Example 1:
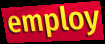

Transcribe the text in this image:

employ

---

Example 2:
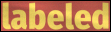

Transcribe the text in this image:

labeled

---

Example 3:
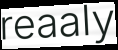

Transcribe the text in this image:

reaaly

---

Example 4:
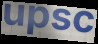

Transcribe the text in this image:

upsc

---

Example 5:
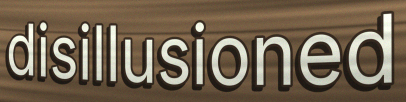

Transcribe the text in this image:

disillusioned